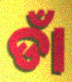
ଡାଁ